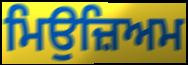
ਮਿਉਜ਼ਿਅਮ